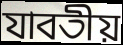
যাবতীয়